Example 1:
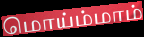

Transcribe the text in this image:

மொய்ம்மாம்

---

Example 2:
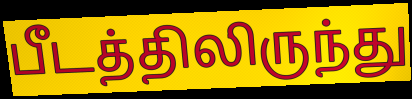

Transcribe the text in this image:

பீடத்திலிருந்து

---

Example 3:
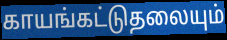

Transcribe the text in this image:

காயங்கட்டுதலையும்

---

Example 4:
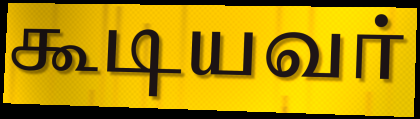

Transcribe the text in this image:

கூடியவர்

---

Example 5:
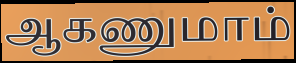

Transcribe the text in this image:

ஆகணுமாம்